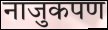
नाजुकपण